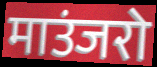
माउंजरो